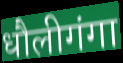
धौलीगंगा